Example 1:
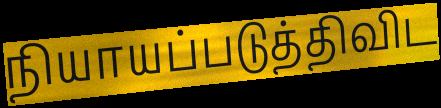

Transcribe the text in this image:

நியாயப்படுத்திவிட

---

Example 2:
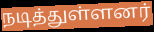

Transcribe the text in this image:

நடித்துள்ளனர்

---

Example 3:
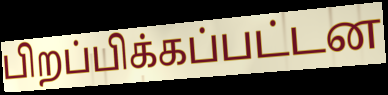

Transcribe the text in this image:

பிறப்பிக்கப்பட்டன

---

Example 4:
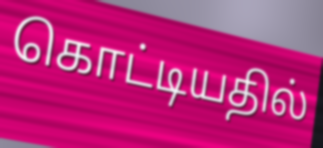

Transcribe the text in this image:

கொட்டியதில்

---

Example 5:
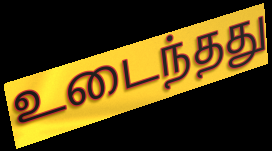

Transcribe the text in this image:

உடைந்தது